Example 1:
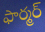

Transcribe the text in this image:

ఫార్మర్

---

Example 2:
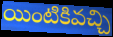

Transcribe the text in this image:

యింటికివచ్చి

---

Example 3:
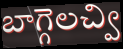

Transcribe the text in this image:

బాగ్గెలచ్వి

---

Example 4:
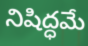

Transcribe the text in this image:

నిషిద్ధమే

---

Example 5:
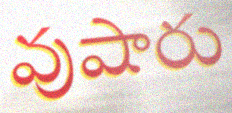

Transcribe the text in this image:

వుషారు